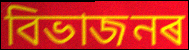
বিভাজনৰ